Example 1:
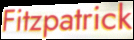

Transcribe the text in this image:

Fitzpatrick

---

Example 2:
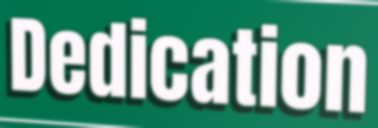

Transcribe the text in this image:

Dedication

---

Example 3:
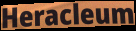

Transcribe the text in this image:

Heracleum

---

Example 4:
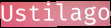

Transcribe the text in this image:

Ustilago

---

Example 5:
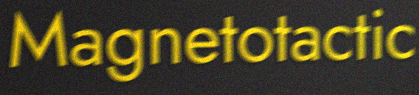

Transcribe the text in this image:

Magnetotactic